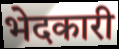
भेदकारी